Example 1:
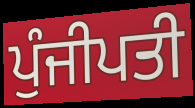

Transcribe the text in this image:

ਪੁੰਜੀਪਤੀ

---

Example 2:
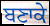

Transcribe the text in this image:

ਬਣਾਕੇ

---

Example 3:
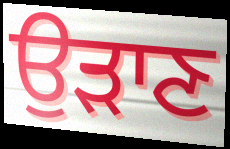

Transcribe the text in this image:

ਉਡ਼ਾਣ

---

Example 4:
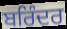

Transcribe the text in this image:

ਬਰਿੰਦਰ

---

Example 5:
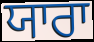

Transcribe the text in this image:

ਯਾਰਾ